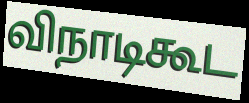
விநாடிகூட